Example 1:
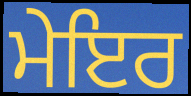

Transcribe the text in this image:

ਮੇਇਰ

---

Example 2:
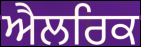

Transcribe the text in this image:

ਐਲਰਿਕ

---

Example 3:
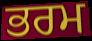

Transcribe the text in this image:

ਭਰਮ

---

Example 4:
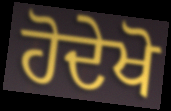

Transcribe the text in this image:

ਹੋਦੇਖੋ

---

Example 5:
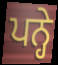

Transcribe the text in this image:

ਪਨ੍ਹੇ